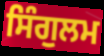
ਸਿੰਗੁਲਮ